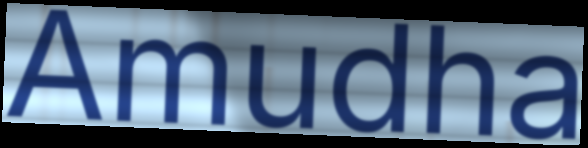
Amudha